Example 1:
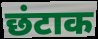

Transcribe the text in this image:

छंटाक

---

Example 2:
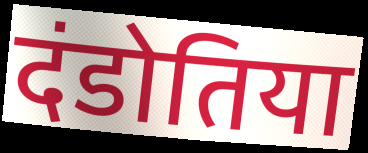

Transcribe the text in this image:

दंडोतिया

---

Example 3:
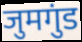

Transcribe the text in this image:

जुमगुंड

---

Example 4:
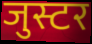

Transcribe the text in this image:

जुस्टर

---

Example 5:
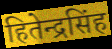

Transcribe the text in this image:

हितेन्द्रसिंह